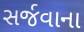
સર્જવાના